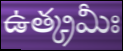
ఉత్క్రమీః